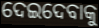
ଦେଇଦେବାକୁ